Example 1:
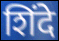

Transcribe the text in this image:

शिंदे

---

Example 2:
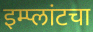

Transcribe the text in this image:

इम्प्लांटचा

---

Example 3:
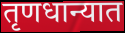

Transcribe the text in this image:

तृणधान्यात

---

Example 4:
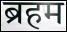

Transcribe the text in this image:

ब्रहम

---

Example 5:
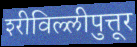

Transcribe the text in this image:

श्रीविल्लीपुत्तूर